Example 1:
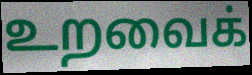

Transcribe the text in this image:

உறவைக்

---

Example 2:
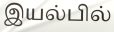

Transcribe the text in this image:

இயல்பில்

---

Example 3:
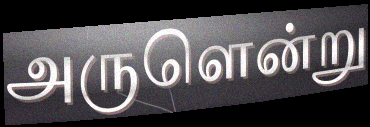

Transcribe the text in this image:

அருளென்று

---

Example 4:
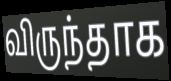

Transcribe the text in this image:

விருந்தாக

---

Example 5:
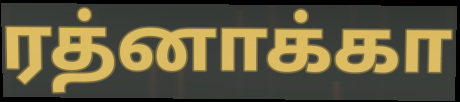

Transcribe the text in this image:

ரத்னாக்கா